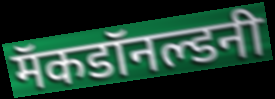
मॅकडॉनल्डनी